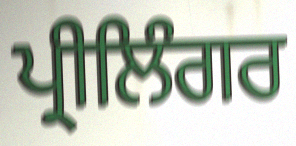
ਪ੍ਰੀਲਿੰਗਰ